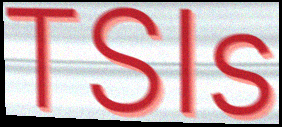
TSIs